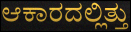
ಆಕಾರದಲ್ಲಿತ್ತು